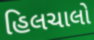
હિલચાલો